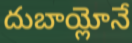
దుబాయ్లోనే